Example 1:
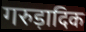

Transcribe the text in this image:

गरुड़ादिक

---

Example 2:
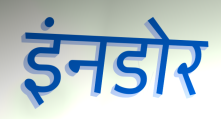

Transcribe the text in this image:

इंनडोर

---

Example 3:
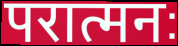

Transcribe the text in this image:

परात्मनः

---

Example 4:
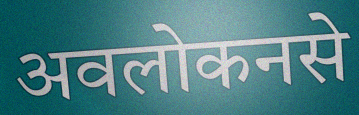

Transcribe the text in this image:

अवलोकनसे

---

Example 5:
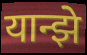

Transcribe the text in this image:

यान्झे